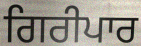
ਗਿਰੀਪਾਰ